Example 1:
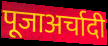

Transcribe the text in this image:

पूजाअर्चादी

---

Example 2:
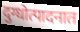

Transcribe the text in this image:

दुग्धोत्पादनात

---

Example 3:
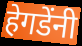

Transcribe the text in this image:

हेगडेंनी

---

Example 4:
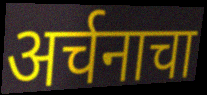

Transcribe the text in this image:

अर्चनाचा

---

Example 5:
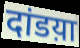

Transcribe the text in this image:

दांडय़ा